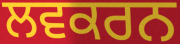
ਲਵਕਰਨ